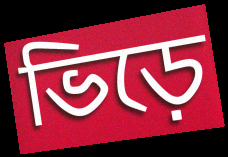
ভিড়ে